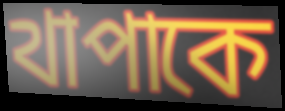
থাপাকে